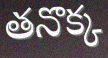
తనొక్క